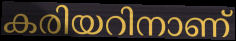
കരിയറിനാണ്